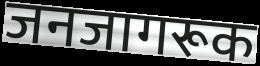
जनजागरूक